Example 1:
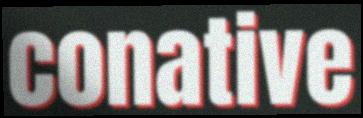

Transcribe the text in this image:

conative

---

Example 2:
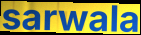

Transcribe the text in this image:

sarwala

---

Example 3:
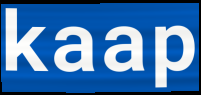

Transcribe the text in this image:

kaap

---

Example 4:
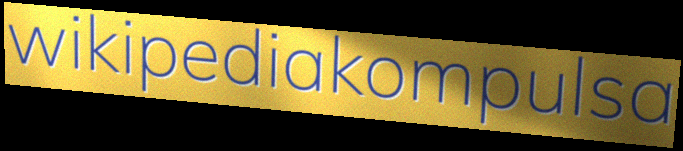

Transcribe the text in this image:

wikipediakompulsa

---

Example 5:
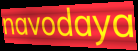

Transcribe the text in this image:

navodaya